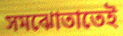
সমঝোতাতেই